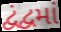
દ્વંદ્વમાં